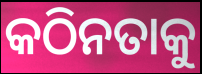
କଠିନତାକୁ